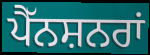
ਪੈੱਨਸ਼ਨਰਾਂ